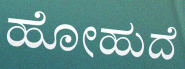
ಹೋಹುದೆ